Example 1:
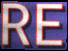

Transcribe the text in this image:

RE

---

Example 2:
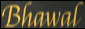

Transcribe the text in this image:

Bhawal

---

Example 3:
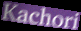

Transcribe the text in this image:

Kachori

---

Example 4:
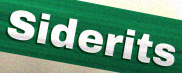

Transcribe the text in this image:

Siderits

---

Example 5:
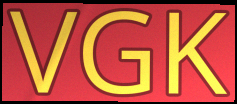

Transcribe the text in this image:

VGK